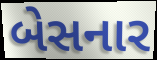
બેસનાર